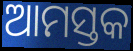
ଆମସ୍ତକ